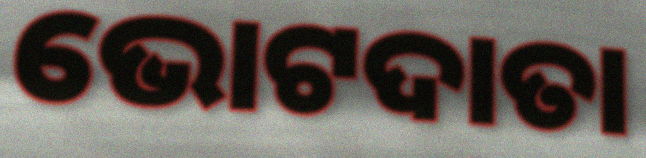
ଭୋଟଦାତା